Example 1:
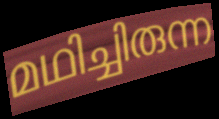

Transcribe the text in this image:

മഥിച്ചിരുന്ന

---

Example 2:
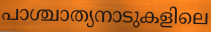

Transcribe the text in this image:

പാശ്ചാത്യനാടുകളിലെ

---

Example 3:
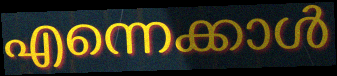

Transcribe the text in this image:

എന്നെക്കാൾ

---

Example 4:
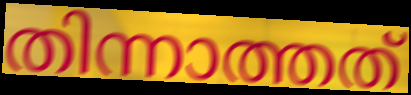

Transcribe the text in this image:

തിന്നാത്തത്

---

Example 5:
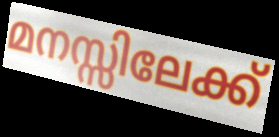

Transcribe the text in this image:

മനസ്സിലേക്ക്